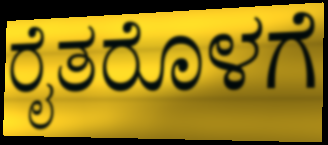
ರೈತರೊಳಗೆ